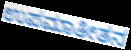
ಉಪಮಾತೀತನ